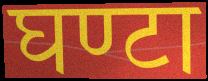
घण्टा